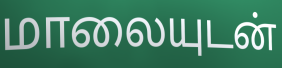
மாலையுடன்